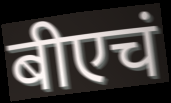
बीएचं